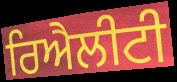
ਰਿਐਲੀਟੀ